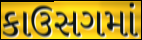
કાઉસગમાં